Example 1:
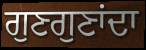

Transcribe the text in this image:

ਗੁਣਗੁਣਾਂਦਾ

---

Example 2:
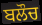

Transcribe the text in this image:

ਬਲੌਚ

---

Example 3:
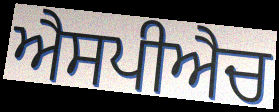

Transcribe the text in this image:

ਐਸਪੀਐਚ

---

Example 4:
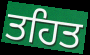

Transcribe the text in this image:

ਤਹਿਤ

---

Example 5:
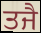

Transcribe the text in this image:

ਤਜੈ